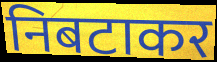
निबटाकर